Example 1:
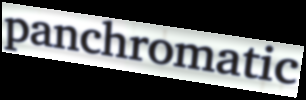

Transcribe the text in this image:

panchromatic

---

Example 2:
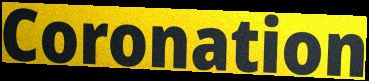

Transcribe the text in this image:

Coronation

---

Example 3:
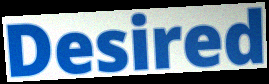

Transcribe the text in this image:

Desired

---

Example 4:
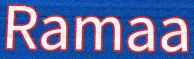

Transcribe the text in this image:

Ramaa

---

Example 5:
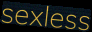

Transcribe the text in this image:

sexless